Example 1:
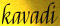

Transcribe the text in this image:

kavadi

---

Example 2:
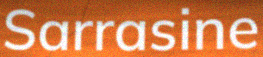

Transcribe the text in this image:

Sarrasine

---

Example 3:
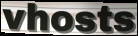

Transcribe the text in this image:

vhosts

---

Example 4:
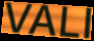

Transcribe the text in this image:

VALI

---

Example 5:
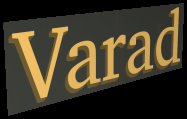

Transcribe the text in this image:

Varad